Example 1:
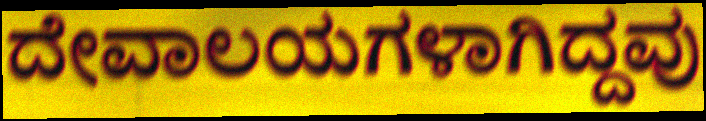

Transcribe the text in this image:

ದೇವಾಲಯಗಳಾಗಿದ್ದವು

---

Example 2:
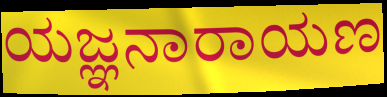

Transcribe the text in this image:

ಯಜ್ಞನಾರಾಯಣ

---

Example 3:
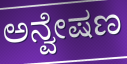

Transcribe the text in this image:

ಅನ್ವೇಷಣ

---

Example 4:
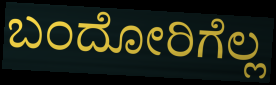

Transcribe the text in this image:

ಬಂದೋರಿಗೆಲ್ಲ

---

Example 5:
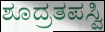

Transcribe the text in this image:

ಶೂದ್ರತಪಸ್ವಿ